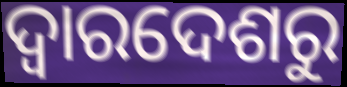
ଦ୍ଵାରଦେଶରୁ